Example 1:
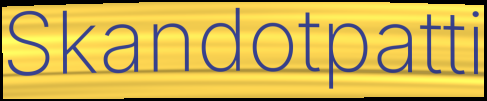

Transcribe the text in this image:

Skandotpatti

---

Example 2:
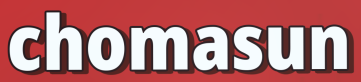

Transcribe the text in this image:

chomasun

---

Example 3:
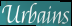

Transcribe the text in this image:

Urbains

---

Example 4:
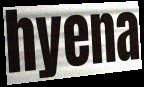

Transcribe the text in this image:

hyena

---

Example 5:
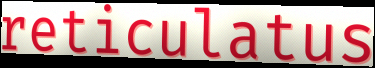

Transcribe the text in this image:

reticulatus